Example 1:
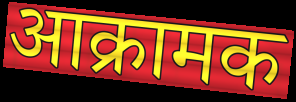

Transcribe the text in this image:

आक्रामक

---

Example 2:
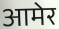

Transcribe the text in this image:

आमेर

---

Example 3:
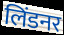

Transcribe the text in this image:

लिंडनर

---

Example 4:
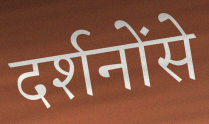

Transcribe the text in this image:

दर्शनोंसे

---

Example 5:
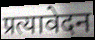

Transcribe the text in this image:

प्रत्यावेदन